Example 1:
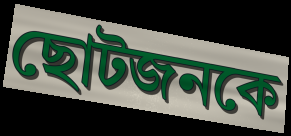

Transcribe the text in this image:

ছোটজনকে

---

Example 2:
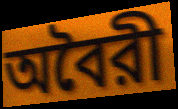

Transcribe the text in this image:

অবৈরী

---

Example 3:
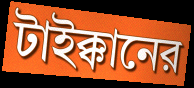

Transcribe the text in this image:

টাইক্কানের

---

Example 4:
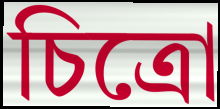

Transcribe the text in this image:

চিত্রো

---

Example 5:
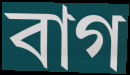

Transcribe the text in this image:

বাগ